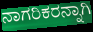
ನಾಗರಿಕರನ್ನಾಗಿ